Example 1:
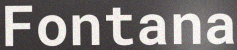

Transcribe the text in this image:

Fontana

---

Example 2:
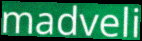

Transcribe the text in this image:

madveli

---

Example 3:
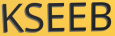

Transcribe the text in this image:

KSEEB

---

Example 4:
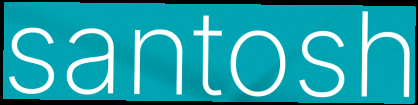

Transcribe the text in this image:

santosh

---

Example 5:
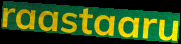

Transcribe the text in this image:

raastaaru